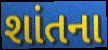
શાંતના